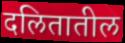
दलितातील